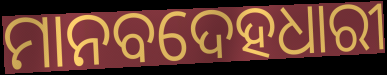
ମାନବଦେହଧାରୀ